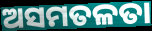
ଅସମତଳତା